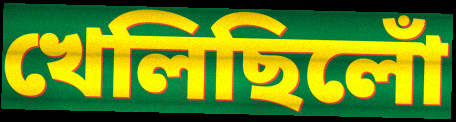
খেলিছিলোঁ